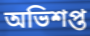
অভিশপ্ত